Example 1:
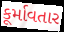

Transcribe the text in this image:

કૂર્માવતાર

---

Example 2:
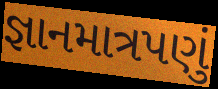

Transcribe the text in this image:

જ્ઞાનમાત્રપણું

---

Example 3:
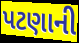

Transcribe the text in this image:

પટણાની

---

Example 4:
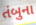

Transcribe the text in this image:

તંબુના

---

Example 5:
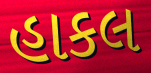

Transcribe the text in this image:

હાકલ